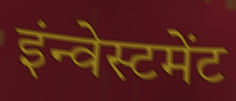
इंन्वेस्टमेंट